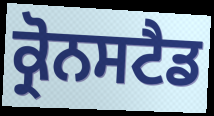
ਕ੍ਰੋਨਸਟੈਡ